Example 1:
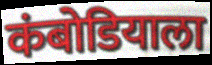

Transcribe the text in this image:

कंबोडियाला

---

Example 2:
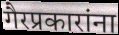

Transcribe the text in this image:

गैरप्रकारांना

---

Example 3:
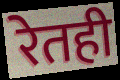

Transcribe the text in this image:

रेतही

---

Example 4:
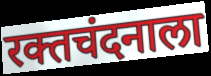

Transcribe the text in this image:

रक्तचंदनाला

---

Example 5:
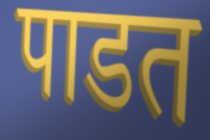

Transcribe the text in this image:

पाडत